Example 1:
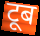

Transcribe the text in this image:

टूब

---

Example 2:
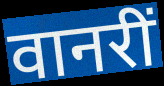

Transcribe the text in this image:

वानरीं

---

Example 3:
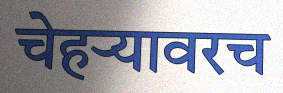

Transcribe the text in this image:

चेहर्‍यावरच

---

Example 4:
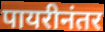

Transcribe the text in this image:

पायरीनंतर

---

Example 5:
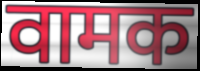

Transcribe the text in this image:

वामक